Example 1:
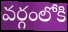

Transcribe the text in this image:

వర్గంలోకి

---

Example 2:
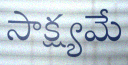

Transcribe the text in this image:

సాక్ష్యమే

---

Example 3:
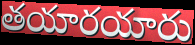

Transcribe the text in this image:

తయారయారు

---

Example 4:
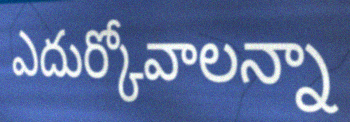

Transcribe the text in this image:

ఎదుర్కోవాలన్నా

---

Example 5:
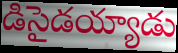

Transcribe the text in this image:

డిసైడయ్యాడు